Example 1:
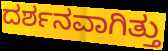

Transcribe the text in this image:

ದರ್ಶನವಾಗಿತ್ತು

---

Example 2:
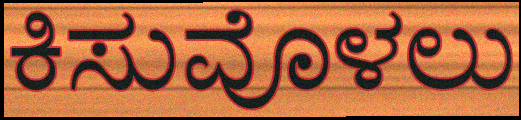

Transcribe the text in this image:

ಕಿಸುವೊಳಲು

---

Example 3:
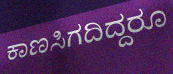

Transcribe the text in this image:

ಕಾಣಸಿಗದಿದ್ದರೂ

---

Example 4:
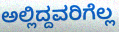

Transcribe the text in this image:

ಅಲ್ಲಿದ್ದವರಿಗೆಲ್ಲ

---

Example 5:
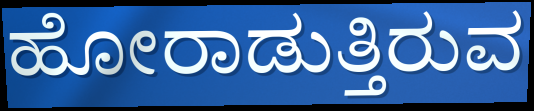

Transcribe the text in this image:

ಹೋರಾಡುತ್ತಿರುವ